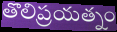
తొలిప్రయత్నం